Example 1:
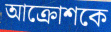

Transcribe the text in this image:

আক্রোশকে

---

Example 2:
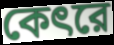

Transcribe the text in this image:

কেৎরে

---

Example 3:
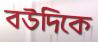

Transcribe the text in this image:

বউদিকে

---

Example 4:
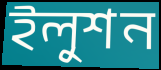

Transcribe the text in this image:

ইলুশন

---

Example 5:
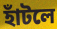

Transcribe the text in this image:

হাঁটলে